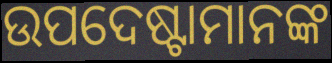
ଉପଦେଷ୍ଟାମାନଙ୍କ